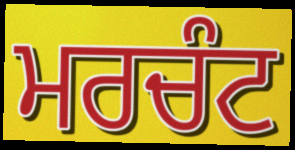
ਮਰਚੰਟ